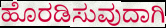
ಹೊರಡಿಸುವುದಾಗಿ